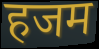
हजम